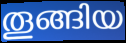
തൂങ്ങിയ